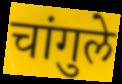
चांगुले